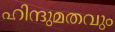
ഹിന്ദുമതവും